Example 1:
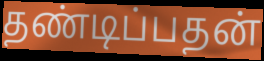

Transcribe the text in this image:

தண்டிப்பதன்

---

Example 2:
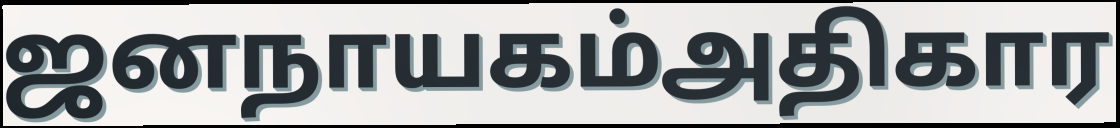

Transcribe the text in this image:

ஜனநாயகம்அதிகார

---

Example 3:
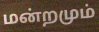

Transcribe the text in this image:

மன்றமும்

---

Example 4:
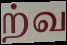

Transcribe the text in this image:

ற்வ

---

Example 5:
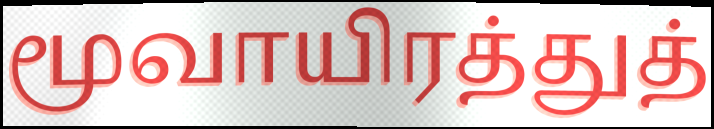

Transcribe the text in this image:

மூவாயிரத்துத்